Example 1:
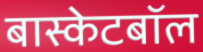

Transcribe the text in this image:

बास्केटबॉल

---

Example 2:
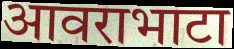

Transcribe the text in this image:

आवराभाटा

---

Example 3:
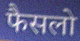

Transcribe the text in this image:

फैसलो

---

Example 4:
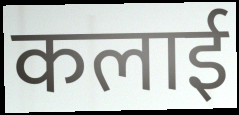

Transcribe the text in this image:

कलाई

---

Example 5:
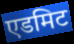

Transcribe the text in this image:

एडमिट